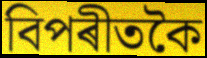
বিপৰীতকৈ